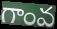
గాంవ